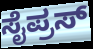
ಸೈಪ್ರಸ್